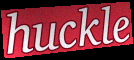
huckle